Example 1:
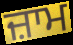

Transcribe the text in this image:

ਜ਼ਾਮ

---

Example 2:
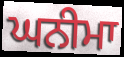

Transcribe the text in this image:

ਘਨੀਮਾ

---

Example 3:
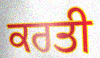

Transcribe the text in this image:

ਕਰਤੀ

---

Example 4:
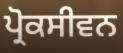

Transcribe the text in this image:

ਪ੍ਰੋਕਸੀਵਨ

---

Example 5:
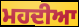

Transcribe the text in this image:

ਮਹਦੀਆ